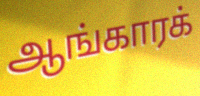
ஆங்காரக்